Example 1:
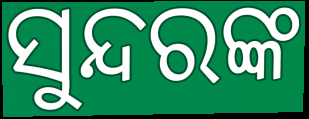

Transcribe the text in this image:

ସୁନ୍ଦରଙ୍କ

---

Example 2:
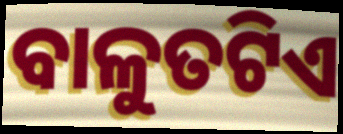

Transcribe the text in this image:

ବାଳୁତଟିଏ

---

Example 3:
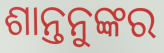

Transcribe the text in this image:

ଶାନ୍ତନୁଙ୍କର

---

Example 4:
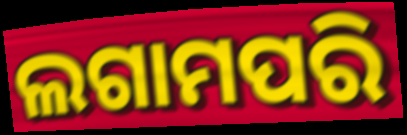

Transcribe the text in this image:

ଲଗାମପରି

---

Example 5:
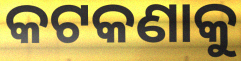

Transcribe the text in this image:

କଟକଣାକୁ